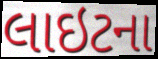
લાઇટના